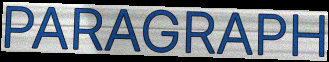
PARAGRAPH